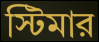
স্টিমার